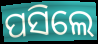
ପସିଲେ